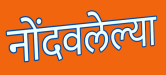
नोंदवलेल्या